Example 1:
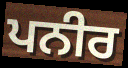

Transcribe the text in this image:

ਪਨੀਰ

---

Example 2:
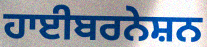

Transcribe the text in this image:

ਹਾਈਬਰਨੇਸ਼ਨ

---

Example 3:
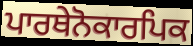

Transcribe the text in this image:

ਪਾਰਥੇਨੋਕਾਰਪਿਕ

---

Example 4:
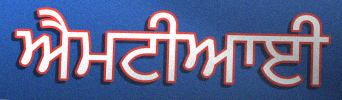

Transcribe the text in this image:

ਐਮਟੀਆਈ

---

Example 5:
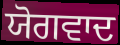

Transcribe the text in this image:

ਯੋਗਵਾਦ